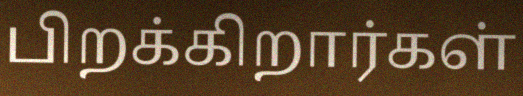
பிறக்கிறார்கள்